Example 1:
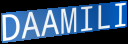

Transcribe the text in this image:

DAAMILI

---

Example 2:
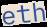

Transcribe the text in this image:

eth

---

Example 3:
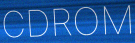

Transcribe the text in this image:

CDROM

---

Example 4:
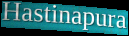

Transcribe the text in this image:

Hastinapura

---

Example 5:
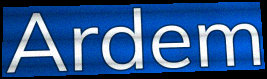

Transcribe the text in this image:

Ardem